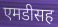
एमडीसह